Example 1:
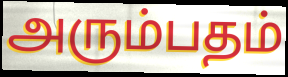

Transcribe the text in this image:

அரும்பதம்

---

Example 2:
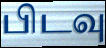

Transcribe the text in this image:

பிடவு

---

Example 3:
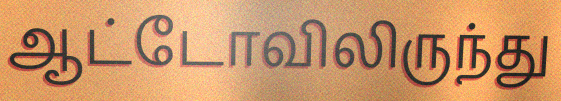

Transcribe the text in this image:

ஆட்டோவிலிருந்து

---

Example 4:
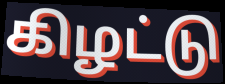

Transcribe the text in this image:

கிழட்டு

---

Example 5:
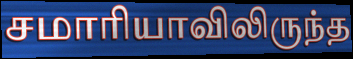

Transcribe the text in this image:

சமாரியாவிலிருந்த